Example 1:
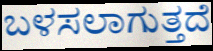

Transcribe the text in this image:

ಬಳಸಲಾಗುತ್ತದೆ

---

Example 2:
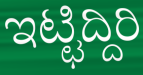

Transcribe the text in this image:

ಇಟ್ಟಿದ್ದಿರಿ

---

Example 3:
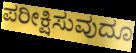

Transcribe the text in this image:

ಪರೀಕ್ಷಿಸುವುದೂ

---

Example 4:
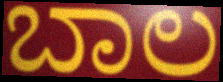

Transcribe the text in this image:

ಬಾಲ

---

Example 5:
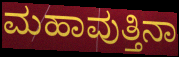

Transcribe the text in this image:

ಮಹಾವುತ್ತಿನಾ